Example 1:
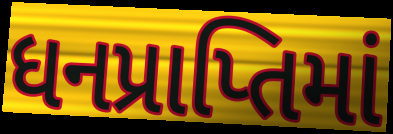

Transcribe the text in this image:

ધનપ્રાપ્તિમાં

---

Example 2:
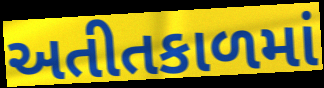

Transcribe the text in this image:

અતીતકાળમાં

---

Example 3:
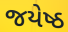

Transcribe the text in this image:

જયેષ્ઠ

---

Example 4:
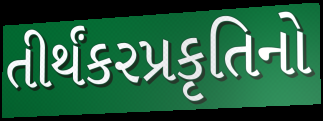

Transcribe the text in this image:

તીર્થંકરપ્રકૃતિનો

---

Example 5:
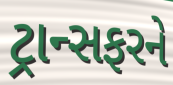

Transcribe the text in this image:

ટ્રાન્સફરને